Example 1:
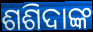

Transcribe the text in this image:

ଶଶିଦାଙ୍କ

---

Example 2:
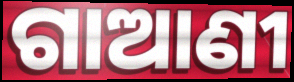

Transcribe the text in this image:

ଗାଆଣୀ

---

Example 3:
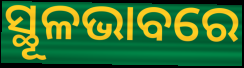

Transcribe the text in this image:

ସ୍ଥୂଳଭାବରେ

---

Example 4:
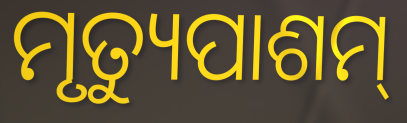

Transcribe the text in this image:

ମୃତ୍ୟୁପାଶମ୍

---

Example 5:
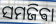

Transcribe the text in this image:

ସମଜିଵା